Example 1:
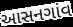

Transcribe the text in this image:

આસનગાંવ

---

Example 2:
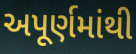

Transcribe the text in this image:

અપૂર્ણમાંથી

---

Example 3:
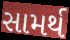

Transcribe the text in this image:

સામર્થ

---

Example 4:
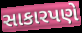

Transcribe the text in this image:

સાકારપણે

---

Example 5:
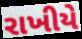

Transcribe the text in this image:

રાખીયે